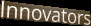
Innovators